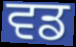
ਵਡ